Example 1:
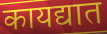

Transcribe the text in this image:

कायद्यात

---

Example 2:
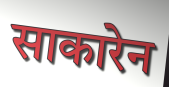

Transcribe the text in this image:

साकारेन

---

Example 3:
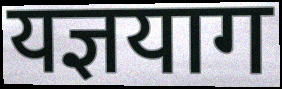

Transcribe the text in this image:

यज्ञयाग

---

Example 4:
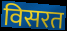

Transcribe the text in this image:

विसरत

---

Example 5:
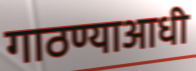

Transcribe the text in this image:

गाठण्याआधी